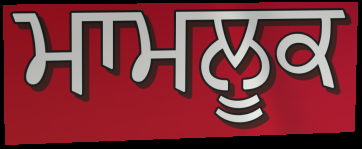
ਮਾਮਲੂਕ